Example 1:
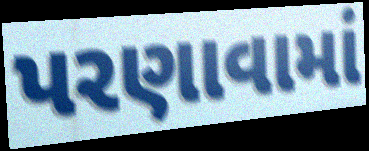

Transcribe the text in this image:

પરણાવામાં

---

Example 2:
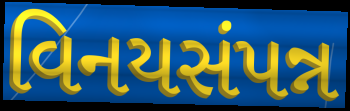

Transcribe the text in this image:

વિનયસંપન્ન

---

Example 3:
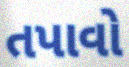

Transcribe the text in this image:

તપાવો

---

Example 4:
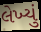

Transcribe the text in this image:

લેખ્યું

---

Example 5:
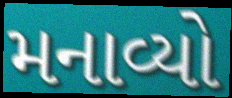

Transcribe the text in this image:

મનાવ્યો